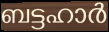
ബട്ടഹാർ